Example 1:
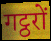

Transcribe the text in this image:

गट्ठरों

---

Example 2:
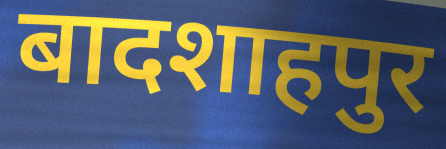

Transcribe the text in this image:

बादशाहपुर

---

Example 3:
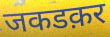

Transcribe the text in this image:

जकडक़र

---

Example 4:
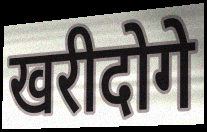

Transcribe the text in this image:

खरीदोगे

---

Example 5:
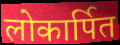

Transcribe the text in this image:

लोकार्पित